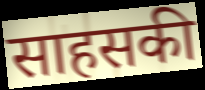
साहसकी